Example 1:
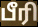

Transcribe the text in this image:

பீரி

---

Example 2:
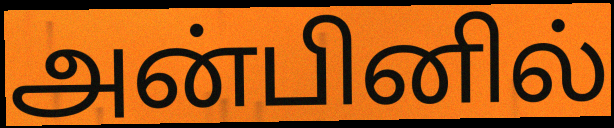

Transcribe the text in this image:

அன்பினில்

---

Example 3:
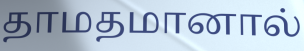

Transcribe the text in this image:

தாமதமானால்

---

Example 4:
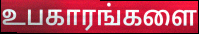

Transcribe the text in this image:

உபகாரங்களை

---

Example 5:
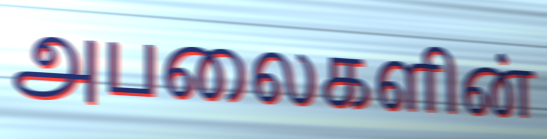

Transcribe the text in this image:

அபலைகளின்